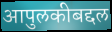
आपुलकीबद्दल